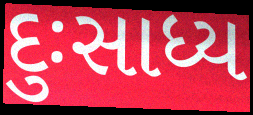
દુઃસાધ્ય